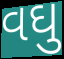
વઘુ